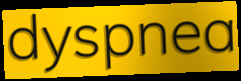
dyspnea